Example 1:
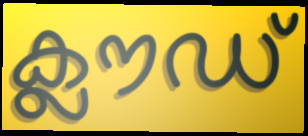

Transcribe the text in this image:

ക്ലൗഡ്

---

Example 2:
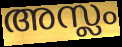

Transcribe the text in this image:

അസ്ലം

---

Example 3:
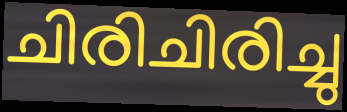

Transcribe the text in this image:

ചിരിചിരിച്ചു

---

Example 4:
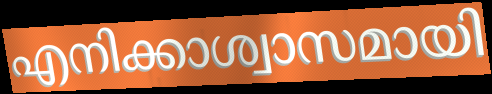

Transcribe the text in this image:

എനിക്കാശ്വാസമായി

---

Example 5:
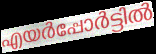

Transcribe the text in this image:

എയർപ്പോർട്ടിൽ